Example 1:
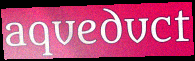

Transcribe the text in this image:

aqueduct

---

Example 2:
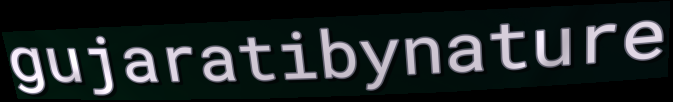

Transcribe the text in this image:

gujaratibynature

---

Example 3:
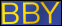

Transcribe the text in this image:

BBY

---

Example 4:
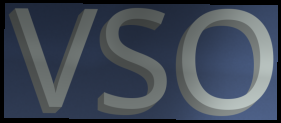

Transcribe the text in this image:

VSO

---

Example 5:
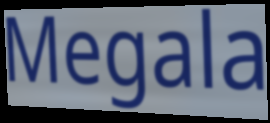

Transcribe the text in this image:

Megala